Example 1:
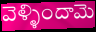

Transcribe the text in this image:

వెళ్ళిందామె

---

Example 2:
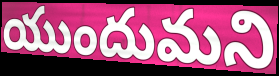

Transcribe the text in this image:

యుందుమని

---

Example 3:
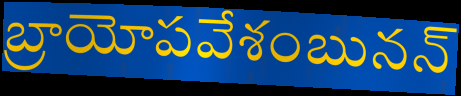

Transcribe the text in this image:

బ్రాయోపవేశంబునన్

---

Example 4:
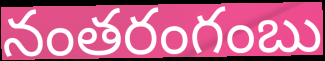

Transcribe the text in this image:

నంతరంగంబు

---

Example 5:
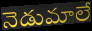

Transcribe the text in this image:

నెడుమాలే